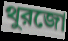
থুরজো